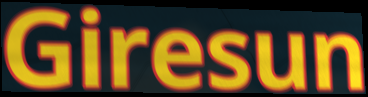
Giresun